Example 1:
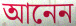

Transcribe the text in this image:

আনেন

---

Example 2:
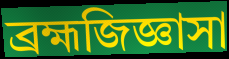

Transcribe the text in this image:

ব্রহ্মজিজ্ঞাসা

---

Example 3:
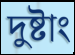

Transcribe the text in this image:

দুষ্টাং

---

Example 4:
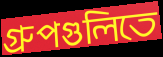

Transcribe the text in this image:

গ্রুপগুলিতে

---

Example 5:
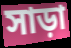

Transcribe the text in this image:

সাড়া